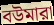
বউমারা